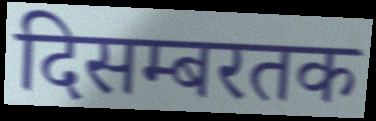
दिसम्बरतक